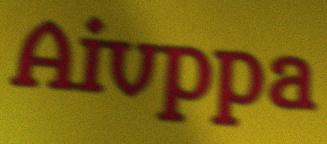
Aiuppa